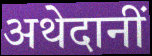
अथेदानीं